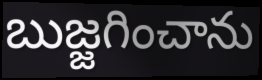
బుజ్జగించాను